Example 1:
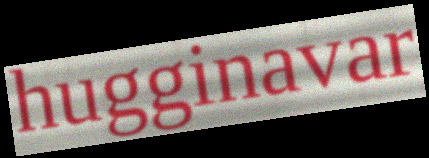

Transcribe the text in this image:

hugginavar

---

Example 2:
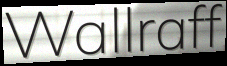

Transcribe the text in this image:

Wallraff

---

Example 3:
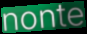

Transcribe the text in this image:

nonte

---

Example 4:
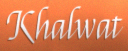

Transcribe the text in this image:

Khalwat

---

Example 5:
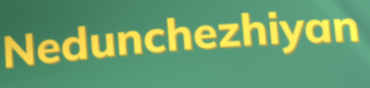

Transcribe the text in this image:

Nedunchezhiyan